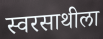
स्वरसाथीला